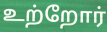
உற்றோர்